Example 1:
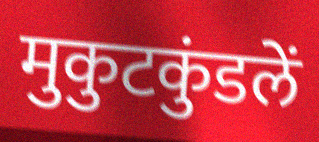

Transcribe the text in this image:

मुकुटकुंडलें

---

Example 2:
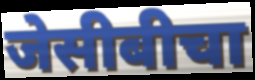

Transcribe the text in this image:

जेसीबीचा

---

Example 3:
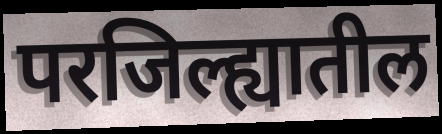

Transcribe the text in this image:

परजिल्ह्यातील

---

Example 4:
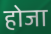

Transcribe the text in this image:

होजा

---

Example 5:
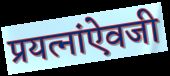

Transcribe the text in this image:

प्रयत्नांऐवजी